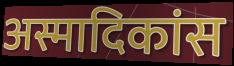
अस्मादिकांस